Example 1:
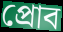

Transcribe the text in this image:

প্রোব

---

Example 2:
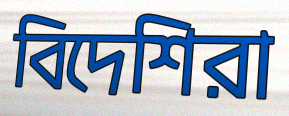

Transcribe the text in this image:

বিদেশিরা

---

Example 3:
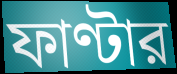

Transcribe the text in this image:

ফাণ্টার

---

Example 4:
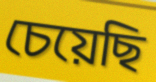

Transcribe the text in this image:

চেয়েছি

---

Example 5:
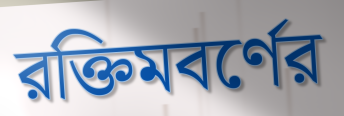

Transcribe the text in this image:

রক্তিমবর্ণের